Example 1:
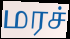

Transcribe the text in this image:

மரச்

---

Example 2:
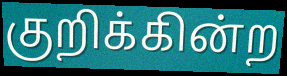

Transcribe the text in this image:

குறிக்கின்ற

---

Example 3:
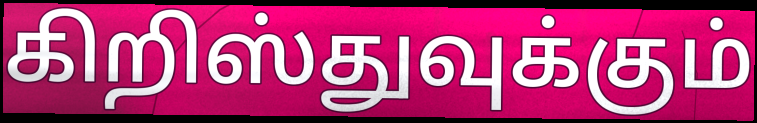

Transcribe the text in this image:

கிறிஸ்துவுக்கும்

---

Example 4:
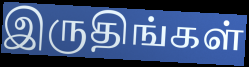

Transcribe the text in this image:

இருதிங்கள்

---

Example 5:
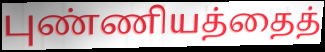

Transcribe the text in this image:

புண்ணியத்தைத்